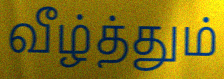
வீழ்த்தும்